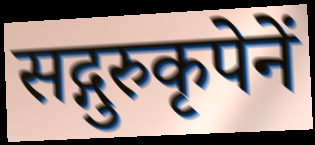
सद्गुरुकृपेनें